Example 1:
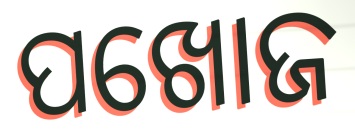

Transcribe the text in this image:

ପଖୋଜ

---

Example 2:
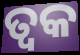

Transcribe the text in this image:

ତ୍ୱକ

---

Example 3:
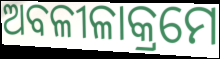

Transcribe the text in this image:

ଅବଳୀଳାକ୍ରମେ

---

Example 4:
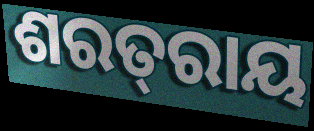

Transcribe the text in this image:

ଶରତ୍‌ରାୟ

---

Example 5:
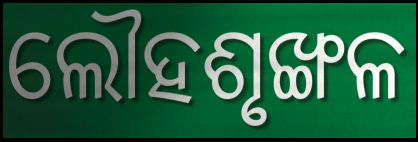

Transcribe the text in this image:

ଲୌହଶୃଙ୍ଖଳ